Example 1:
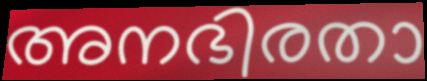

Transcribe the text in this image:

അനഭിരതാ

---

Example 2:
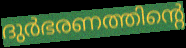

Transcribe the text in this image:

ദുർഭരണത്തിന്റെ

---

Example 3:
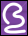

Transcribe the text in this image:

ഭു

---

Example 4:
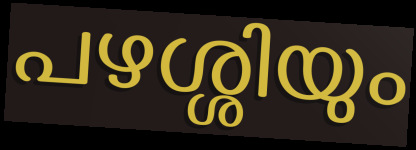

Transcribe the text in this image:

പഴശ്ശിയും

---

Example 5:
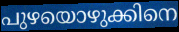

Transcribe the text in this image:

പുഴയൊഴുക്കിനെ